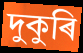
দুকুৰি